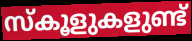
സ്കൂളുകളുണ്ട്